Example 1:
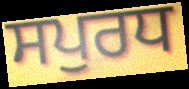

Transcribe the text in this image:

ਸਪੁਰਧ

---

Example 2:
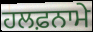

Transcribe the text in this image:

ਹਲਫ਼ਨਾਮੇ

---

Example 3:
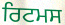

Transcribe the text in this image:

ਰਿਟਮਸ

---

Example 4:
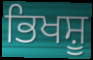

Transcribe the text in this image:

ਭਿਖਸ਼ੂ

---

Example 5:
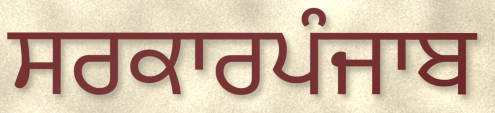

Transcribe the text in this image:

ਸਰਕਾਰਪੰਜਾਬ